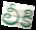
లీకి